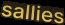
sallies